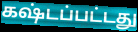
கஷ்டப்பட்டது